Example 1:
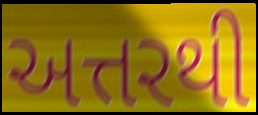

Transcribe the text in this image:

અત્તરથી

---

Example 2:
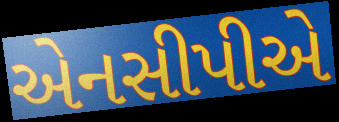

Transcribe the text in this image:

એનસીપીએ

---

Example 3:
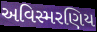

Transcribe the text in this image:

અવિસ્મરણિય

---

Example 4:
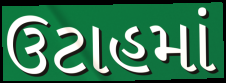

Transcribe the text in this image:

ઉટાહમાં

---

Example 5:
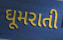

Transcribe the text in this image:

ઘૂમરાતી